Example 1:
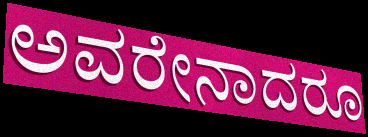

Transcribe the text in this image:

ಅವರೇನಾದರೂ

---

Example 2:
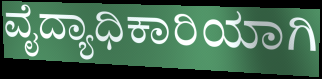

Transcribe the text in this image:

ವೈದ್ಯಾಧಿಕಾರಿಯಾಗಿ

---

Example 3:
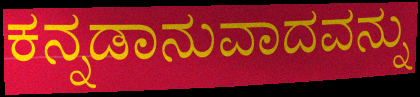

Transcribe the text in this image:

ಕನ್ನಡಾನುವಾದವನ್ನು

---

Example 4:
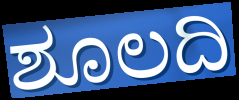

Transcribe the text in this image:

ಶೂಲದಿ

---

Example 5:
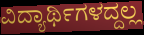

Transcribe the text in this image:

ವಿದ್ಯಾರ್ಥಿಗಳದ್ದಲ್ಲ